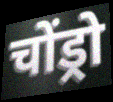
चोंड्रो